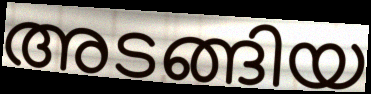
അടങ്ങിയ